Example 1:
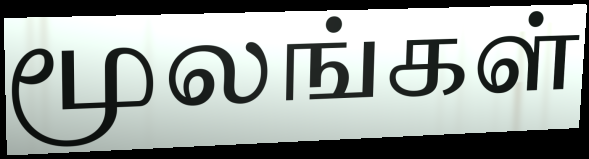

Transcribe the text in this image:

மூலங்கள்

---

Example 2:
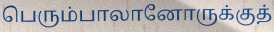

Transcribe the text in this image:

பெரும்பாலானோருக்குத்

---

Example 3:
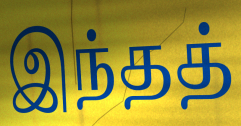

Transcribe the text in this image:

இந்தத்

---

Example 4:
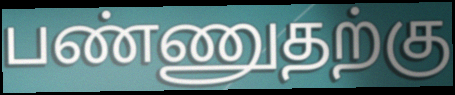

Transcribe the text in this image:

பண்ணுதற்கு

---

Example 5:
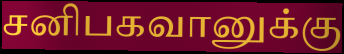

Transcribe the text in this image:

சனிபகவானுக்கு